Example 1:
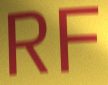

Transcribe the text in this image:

RF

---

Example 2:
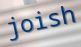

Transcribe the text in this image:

joish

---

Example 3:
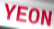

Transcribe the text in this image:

YEON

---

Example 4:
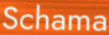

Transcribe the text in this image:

Schama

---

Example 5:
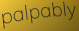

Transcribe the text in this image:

palpably